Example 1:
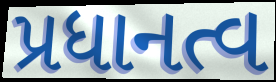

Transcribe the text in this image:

પ્રધાનત્વ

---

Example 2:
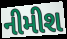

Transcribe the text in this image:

નીમીશ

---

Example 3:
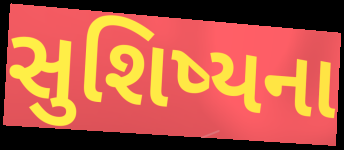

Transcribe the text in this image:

સુશિષ્યના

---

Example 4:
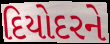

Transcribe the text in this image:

દિયોદરને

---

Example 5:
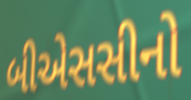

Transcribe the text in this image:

બીએસસીનો